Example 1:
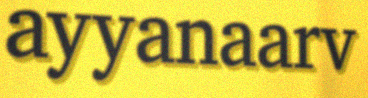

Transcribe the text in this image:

ayyanaarv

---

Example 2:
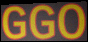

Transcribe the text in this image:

GGO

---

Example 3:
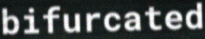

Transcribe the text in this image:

bifurcated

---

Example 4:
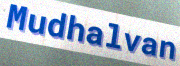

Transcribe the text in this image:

Mudhalvan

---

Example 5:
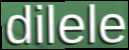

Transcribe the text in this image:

dilele